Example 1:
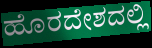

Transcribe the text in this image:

ಹೊರದೇಶದಲ್ಲಿ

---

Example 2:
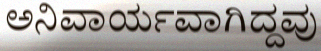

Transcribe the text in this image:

ಅನಿವಾರ್ಯವಾಗಿದ್ದವು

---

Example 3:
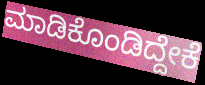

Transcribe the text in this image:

ಮಾಡಿಕೊಂಡಿದ್ದೇಕೆ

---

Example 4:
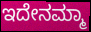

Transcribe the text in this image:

ಇದೇನಮ್ಮಾ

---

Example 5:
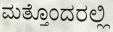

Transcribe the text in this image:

ಮತ್ತೊಂದರಲ್ಲಿ